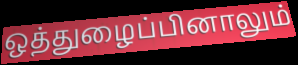
ஒத்துழைப்பினாலும்